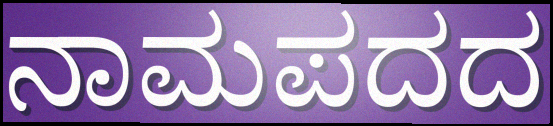
ನಾಮಪದದ